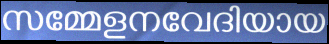
സമ്മേളനവേദിയായ